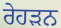
ਰੇਹੜਨ